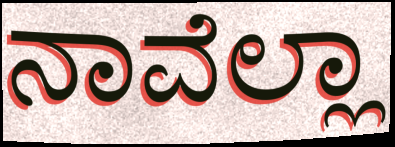
ನಾವೆಲ್ಲಾ